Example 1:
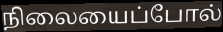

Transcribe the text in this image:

நிலையைப்போல்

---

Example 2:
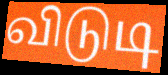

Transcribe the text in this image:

விடுடி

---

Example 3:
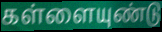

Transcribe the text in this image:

கள்ளையுண்டு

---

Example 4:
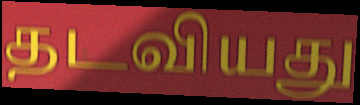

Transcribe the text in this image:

தடவியது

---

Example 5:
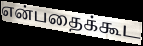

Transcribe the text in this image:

என்பதைக்கூட